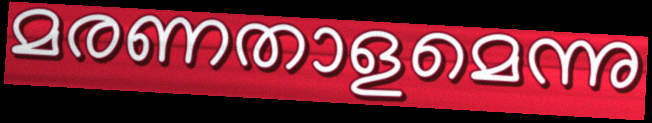
മരണതാളമെന്നു